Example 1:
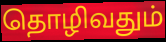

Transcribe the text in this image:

தொழிவதும்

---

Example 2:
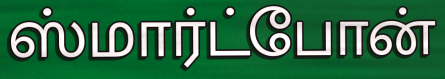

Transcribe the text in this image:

ஸ்மார்ட்போன்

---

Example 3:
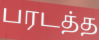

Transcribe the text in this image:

பரடத்த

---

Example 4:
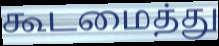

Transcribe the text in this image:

கூடமைத்து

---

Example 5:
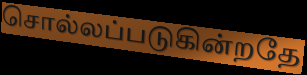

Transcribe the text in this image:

சொல்லப்படுகின்றதே